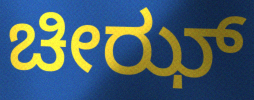
ಚೀಝ್